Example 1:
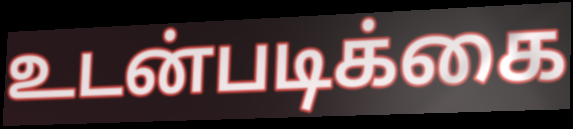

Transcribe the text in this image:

உடன்படிக்கை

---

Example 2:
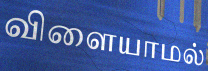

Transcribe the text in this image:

விளையாமல்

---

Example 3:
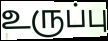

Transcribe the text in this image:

உருப்பு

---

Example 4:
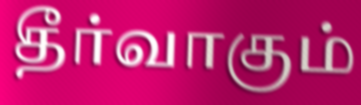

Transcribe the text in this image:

தீர்வாகும்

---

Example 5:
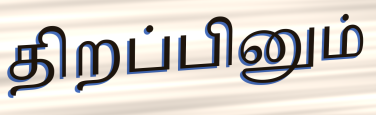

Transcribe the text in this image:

திறப்பினும்